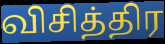
விசித்திர